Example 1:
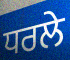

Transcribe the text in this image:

ਧਰਲੇ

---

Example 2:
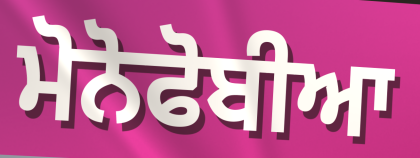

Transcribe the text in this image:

ਮੋਨੋਫੋਬੀਆ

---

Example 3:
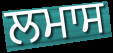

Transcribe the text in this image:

ਲਮਾਸ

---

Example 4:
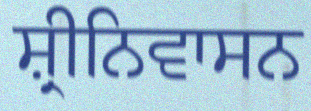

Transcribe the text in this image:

ਸ਼੍ਰੀਨਿਵਾਸਨ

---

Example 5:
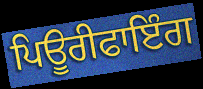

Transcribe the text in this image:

ਪਿਊਰੀਫਾਇੰਗ